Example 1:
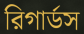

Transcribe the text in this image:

রিগার্ডস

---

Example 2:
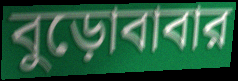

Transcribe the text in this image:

বুড়োবাবার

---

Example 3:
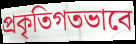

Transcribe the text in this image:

প্রকৃতিগতভাবে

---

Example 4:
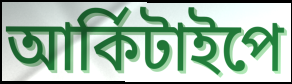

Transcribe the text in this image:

আর্কিটাইপে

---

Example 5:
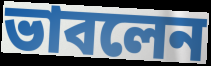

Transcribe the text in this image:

ভাবলেন